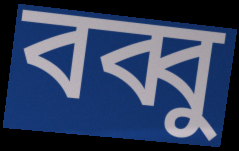
বব্বু